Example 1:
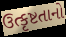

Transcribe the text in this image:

ઉત્કૃષ્ટતાનો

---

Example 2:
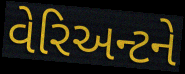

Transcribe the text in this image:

વેરિઅન્ટને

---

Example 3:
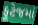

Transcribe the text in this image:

ફૂટેજમાં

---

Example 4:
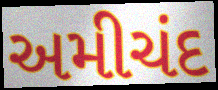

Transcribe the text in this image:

અમીચંદ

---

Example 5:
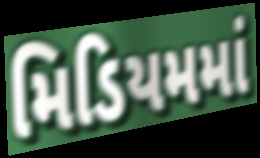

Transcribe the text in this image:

મિડિયમમાં